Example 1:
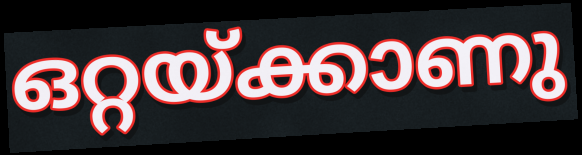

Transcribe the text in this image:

ഒറ്റയ്ക്കാണു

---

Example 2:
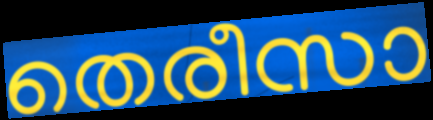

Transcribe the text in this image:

തെരീസാ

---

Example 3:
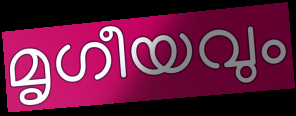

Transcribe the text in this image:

മൃഗീയവും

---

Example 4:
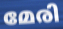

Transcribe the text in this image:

മേരി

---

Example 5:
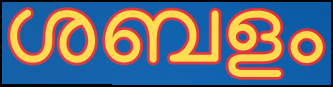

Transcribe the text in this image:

ശബളം